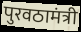
पुरवठामंत्री